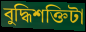
বুদ্ধিশক্তিটা